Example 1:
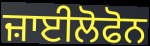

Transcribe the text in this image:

ਜ਼ਾਈਲੋਫੋਨ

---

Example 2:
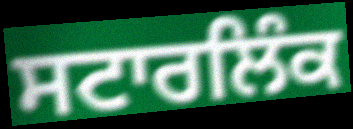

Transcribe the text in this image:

ਸਟਾਰਲਿੰਕ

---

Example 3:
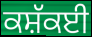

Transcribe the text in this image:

ਕਸ਼ੱਕਈ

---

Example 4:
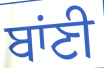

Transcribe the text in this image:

ਬਾਂਣੀ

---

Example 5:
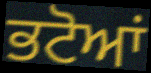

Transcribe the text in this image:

ਭਟੋਆਂ